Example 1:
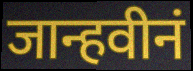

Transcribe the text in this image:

जान्हवीनं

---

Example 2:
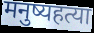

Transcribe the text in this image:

मनुष्यहत्या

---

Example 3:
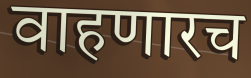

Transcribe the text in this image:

वाहणारच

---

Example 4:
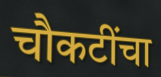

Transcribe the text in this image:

चौकटींचा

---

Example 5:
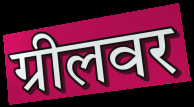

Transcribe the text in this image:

ग्रीलवर